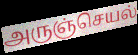
அருஞ்செயல்